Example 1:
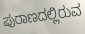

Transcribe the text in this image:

ಪುರಾಣದಲ್ಲಿರುವ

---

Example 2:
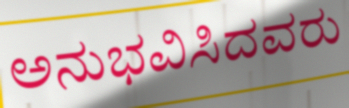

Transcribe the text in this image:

ಅನುಭವಿಸಿದವರು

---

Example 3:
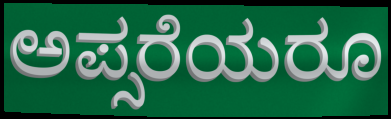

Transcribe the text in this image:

ಅಪ್ಸರೆಯರೂ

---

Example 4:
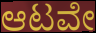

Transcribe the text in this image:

ಆಟವೇ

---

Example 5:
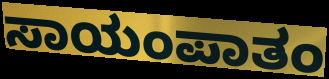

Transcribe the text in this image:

ಸಾಯಂಪಾತಂ